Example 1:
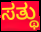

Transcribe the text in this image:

ಸತ್ಥು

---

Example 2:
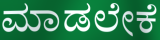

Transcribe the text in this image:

ಮಾಡಲೇಕೆ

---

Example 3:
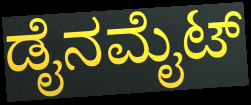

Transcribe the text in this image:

ಡೈನಮೈಟ್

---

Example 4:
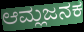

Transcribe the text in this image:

ಆಮ್ಲಜನಕ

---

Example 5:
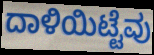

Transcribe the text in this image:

ದಾಳಿಯಿಟ್ಟೆವು